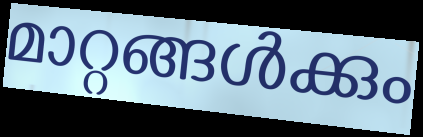
മാറ്റങ്ങൾക്കും